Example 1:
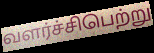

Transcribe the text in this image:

வளர்ச்சிபெற்று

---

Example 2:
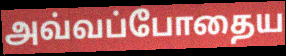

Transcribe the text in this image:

அவ்வப்போதைய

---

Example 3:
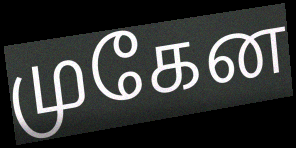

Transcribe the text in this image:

முகேன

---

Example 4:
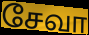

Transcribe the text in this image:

சேவா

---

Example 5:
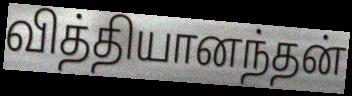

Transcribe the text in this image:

வித்தியானந்தன்